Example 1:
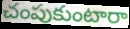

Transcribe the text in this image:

చంపుకుంటారా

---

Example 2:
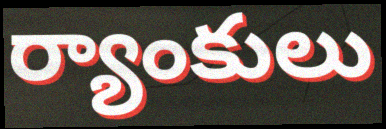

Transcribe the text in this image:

ర్యాంకులు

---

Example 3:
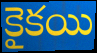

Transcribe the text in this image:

కైకయి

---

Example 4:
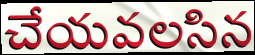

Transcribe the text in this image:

చేయవలసిన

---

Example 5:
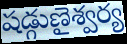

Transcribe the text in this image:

షడ్గుణైశ్వర్య